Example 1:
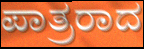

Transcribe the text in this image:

ಪಾತ್ರರಾದ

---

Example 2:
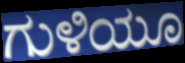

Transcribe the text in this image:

ಗುಳಿಯೂ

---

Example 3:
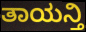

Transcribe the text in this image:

ತಾಯನ್ತಿ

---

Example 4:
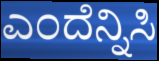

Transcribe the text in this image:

ಎಂದೆನ್ನಿಸಿ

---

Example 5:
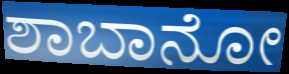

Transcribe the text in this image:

ಶಾಬಾನೋ